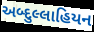
અબ્દુલ્લાહિયન